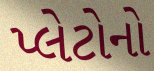
પ્લેટોનો